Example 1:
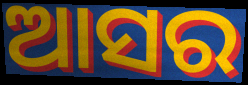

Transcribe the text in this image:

ଆସର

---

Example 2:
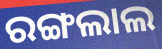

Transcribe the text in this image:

ରଙ୍ଗଲାଲ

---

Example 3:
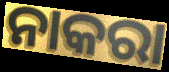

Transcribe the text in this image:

ନାକରା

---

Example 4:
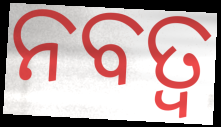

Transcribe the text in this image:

ନବତ୍ଵ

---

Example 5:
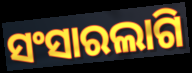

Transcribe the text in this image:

ସଂସାରଲାଗି